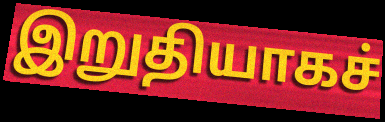
இறுதியாகச்